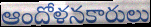
ఆందోళనకారులు